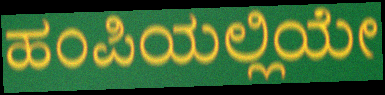
ಹಂಪಿಯಲ್ಲಿಯೇ